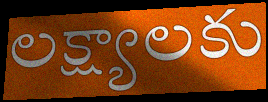
లక్ష్యాలకు